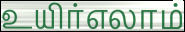
உயிர்எலாம்